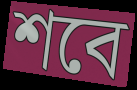
শবে